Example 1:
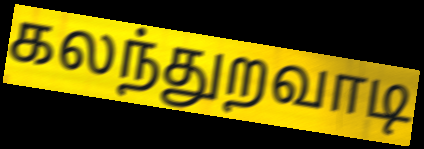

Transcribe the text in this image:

கலந்துறவாடி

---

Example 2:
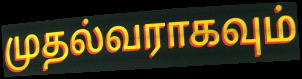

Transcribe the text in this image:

முதல்வராகவும்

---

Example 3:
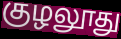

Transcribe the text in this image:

குழலூது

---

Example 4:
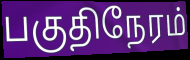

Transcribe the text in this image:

பகுதிநேரம்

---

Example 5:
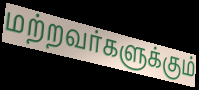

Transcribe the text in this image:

மற்றவர்களுக்கும்